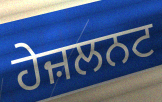
ਹੇਜ਼ਲਨਟ